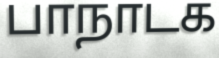
பாநாடக